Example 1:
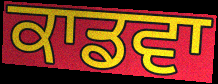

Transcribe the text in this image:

ਕਾਡਵਾ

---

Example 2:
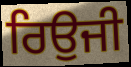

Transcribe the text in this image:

ਰਿਉਜੀ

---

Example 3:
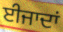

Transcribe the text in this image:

ਈਜਾਦਾਂ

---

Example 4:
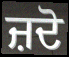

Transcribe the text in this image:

ਜ਼ਦੋ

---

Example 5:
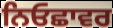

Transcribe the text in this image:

ਨਿਓਛਾਵਰ